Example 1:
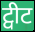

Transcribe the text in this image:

ट्वीट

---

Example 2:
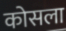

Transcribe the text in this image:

कोसला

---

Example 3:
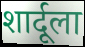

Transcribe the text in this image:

शार्दूला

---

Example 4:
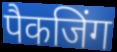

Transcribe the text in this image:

पैकजिंग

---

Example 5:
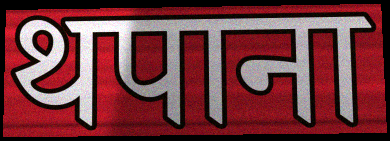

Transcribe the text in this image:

थपाना